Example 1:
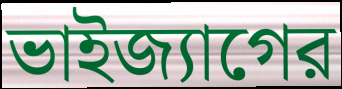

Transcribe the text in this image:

ভাইজ্যাগের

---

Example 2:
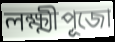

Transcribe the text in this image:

লক্ষ্মীপূজো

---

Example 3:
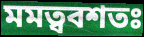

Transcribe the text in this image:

মমত্ববশতঃ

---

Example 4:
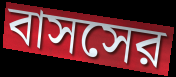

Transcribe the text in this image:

বাসসের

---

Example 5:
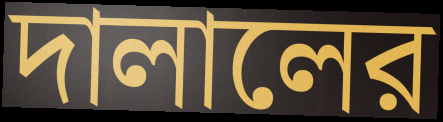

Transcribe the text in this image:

দালালের